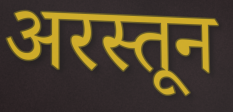
अरस्तून